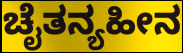
ಚೈತನ್ಯಹೀನ